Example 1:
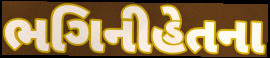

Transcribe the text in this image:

ભગિનીહેતના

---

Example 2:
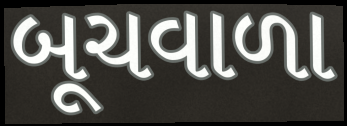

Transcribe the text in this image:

બૂચવાળા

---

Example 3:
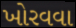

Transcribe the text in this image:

ખોરવવા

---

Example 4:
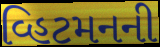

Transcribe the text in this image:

વ્હિટમનની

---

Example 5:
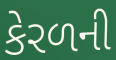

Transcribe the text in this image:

કેરળની